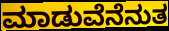
ಮಾಡುವೆನೆನುತ